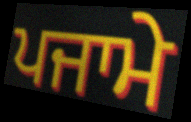
ਪਜਾਮੇ